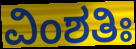
ವಿಂಶತಿಃ